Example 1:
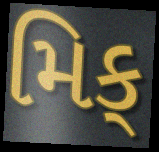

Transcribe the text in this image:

મિક્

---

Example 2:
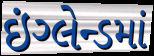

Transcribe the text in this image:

ઇંગ્લેન્ડમાં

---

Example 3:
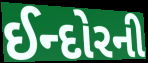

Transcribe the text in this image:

ઈન્દોરની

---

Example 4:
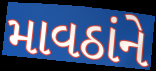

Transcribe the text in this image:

માવઠાંને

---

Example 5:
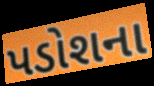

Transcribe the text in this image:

પડોશના